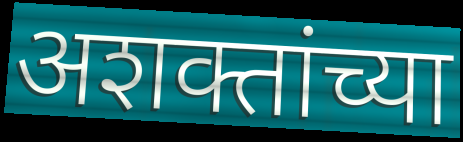
अशक्तांच्या